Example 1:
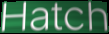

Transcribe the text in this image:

Hatch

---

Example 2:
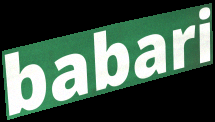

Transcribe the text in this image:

babari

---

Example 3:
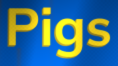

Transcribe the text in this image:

Pigs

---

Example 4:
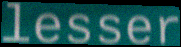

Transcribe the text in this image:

lesser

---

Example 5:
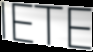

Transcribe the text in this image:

IETE